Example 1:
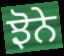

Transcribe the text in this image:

ਝੋਨੇ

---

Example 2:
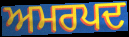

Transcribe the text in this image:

ਅਮਰਪਦ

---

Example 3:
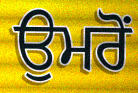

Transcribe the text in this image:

ਉਮਰੋਂ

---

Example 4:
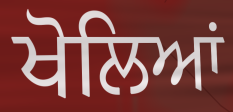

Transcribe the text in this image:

ਖੋਲਿਆਂ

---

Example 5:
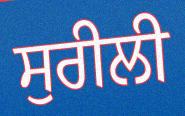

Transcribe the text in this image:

ਸੁਰੀਲੀ